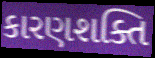
કારણશક્તિ